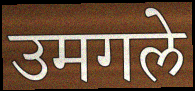
उमगले